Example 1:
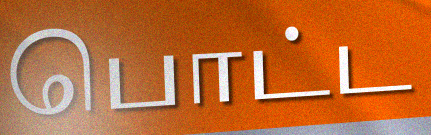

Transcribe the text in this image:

பொட்ட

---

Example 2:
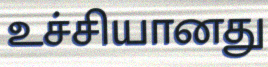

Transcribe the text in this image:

உச்சியானது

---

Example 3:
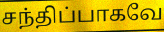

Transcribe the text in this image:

சந்திப்பாகவே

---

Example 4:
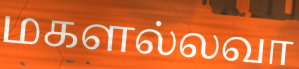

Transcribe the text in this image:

மகளல்லவா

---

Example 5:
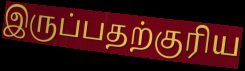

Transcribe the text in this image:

இருப்பதற்குரிய